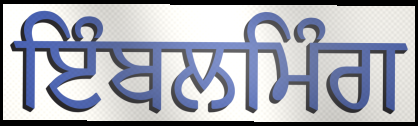
ਇੰਬਲਮਿੰਗ